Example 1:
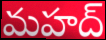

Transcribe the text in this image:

మహద్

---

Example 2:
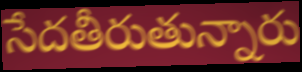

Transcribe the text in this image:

సేదతీరుతున్నారు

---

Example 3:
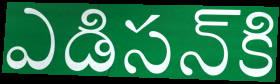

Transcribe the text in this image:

ఎడిసన్‌కి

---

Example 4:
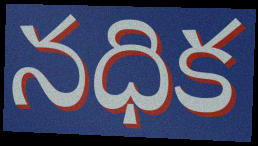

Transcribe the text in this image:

నధిక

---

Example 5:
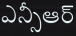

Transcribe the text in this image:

ఎన్సీఆర్